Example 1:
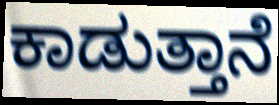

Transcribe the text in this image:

ಕಾಡುತ್ತಾನೆ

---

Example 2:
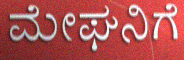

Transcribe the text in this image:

ಮೇಘನಿಗೆ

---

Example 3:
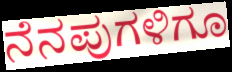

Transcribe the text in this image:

ನೆನಪುಗಳಿಗೂ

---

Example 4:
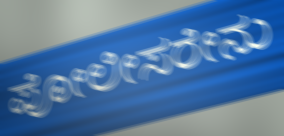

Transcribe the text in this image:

ಪೋಲೀಸರೇನು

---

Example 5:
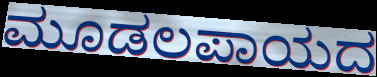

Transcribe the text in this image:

ಮೂಡಲಪಾಯದ